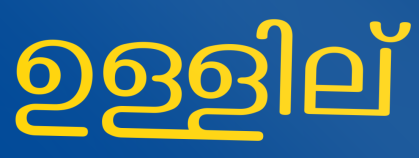
ഉള്ളില്